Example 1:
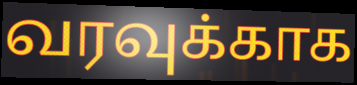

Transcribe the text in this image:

வரவுக்காக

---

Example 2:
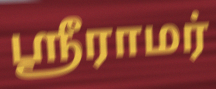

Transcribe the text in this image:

ஶ்ரீராமர்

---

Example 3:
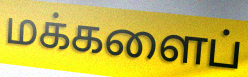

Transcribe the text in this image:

மக்களைப்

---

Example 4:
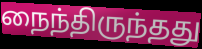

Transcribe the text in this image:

நைந்திருந்தது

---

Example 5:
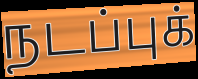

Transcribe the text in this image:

நடப்புக்